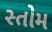
સ્તોમ